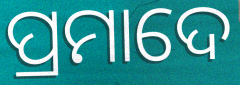
ପ୍ରମାଦେ